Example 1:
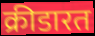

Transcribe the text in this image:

क्रीडारत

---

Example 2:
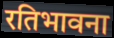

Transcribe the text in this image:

रतिभावना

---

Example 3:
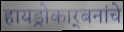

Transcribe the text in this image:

हायड्रोकार्बनांचे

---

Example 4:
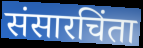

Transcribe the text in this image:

संसारचिंता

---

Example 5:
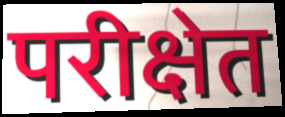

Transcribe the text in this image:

परीक्षेत